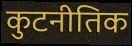
कुटनीतिक